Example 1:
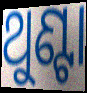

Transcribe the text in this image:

ଥୁଣ୍ଟା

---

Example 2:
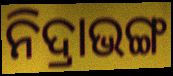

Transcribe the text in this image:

ନିଦ୍ରାଭଙ୍ଗ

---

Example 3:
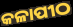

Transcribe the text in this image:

କଳାପୀଠ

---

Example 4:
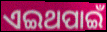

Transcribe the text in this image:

ଏଇଥପାଇଁ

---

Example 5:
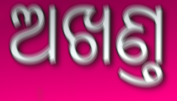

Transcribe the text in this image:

ଅଖଣ୍ତ